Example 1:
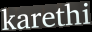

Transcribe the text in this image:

karethi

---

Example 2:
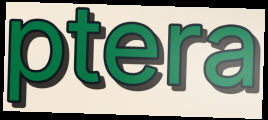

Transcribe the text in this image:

ptera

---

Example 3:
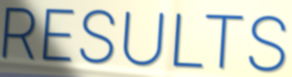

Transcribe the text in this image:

RESULTS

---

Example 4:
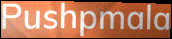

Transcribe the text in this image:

Pushpmala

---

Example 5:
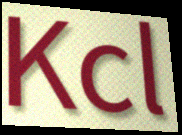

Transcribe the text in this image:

Kcl